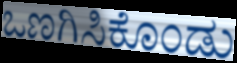
ಒಣಗಿಸಿಕೊಂಡು